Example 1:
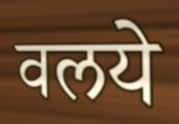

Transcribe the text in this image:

वलये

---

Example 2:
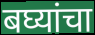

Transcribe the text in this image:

बघ्यांचा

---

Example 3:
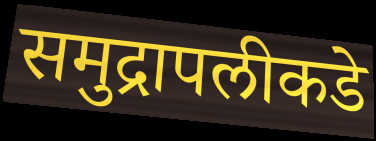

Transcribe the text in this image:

समुद्रापलीकडे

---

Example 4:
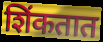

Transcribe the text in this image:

शिंकतात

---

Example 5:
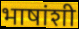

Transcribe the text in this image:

भाषांशी